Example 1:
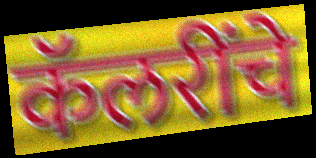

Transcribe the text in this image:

कॅलरींचे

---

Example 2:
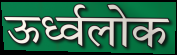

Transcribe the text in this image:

ऊर्ध्वलोक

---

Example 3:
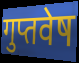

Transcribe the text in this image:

गुप्तवेष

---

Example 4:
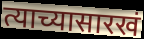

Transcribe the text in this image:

त्याच्यासारखं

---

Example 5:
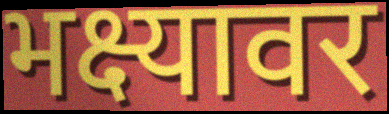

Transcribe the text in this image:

भक्ष्यावर